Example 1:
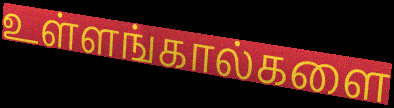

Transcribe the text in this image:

உள்ளங்கால்களை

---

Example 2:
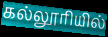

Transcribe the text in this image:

கல்லூரியில்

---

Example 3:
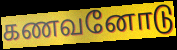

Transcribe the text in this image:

கணவனோடு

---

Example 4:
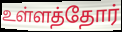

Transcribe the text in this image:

உள்ளத்தோர்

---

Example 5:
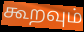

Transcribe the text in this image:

கூறவும்